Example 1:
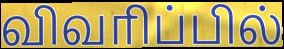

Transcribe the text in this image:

விவரிப்பில்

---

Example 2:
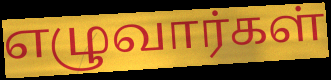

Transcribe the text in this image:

எழுவார்கள்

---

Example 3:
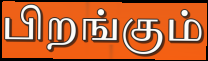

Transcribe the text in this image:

பிறங்கும்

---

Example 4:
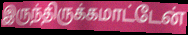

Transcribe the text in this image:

இருந்திருக்கமாட்டேன்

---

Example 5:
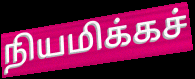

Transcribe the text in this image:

நியமிக்கச்